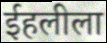
ईहलीला